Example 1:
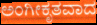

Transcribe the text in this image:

ಅಂಗೀಕೃತವಾದ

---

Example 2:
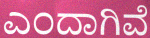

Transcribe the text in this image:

ಎಂದಾಗಿವೆ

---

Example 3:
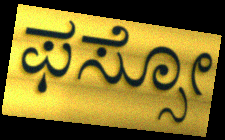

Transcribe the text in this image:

ಫಸ್ಸೋ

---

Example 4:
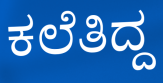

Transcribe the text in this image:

ಕಲೆತಿದ್ದ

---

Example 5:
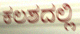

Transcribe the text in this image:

ಕಲಶದಲ್ಲಿ